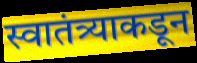
स्वातंत्र्याकडून